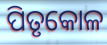
ପିତୃକୋଳ